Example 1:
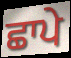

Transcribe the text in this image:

ਛਾਪੇ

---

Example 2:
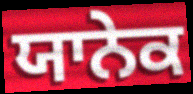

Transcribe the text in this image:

ਯਾਨੇਕ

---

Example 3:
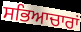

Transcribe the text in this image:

ਸਭਿਆਚਾਰਾਂ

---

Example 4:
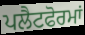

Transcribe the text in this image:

ਪਲੈਟਫੋਰਮਾਂ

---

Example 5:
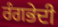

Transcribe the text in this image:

ਰੰਗਭੇਦੀ